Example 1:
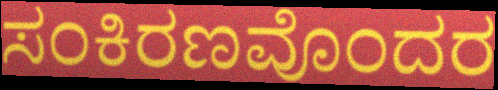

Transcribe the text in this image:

ಸಂಕಿರಣವೊಂದರ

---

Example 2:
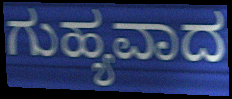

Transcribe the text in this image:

ಗುಹ್ಯವಾದ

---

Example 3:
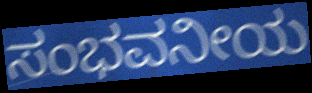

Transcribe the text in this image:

ಸಂಭವನೀಯ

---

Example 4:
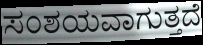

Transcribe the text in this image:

ಸಂಶಯವಾಗುತ್ತದೆ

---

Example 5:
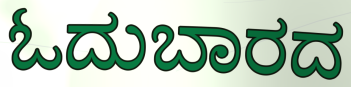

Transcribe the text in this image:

ಓದುಬಾರದ